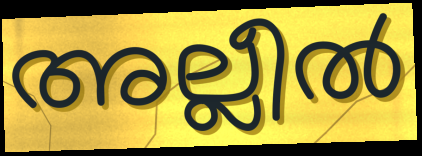
അല്ലീൽ